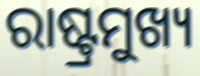
ରାଷ୍ଟ୍ରମୁଖ୍ୟ